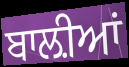
ਬਾਲ਼ੀਆਂ